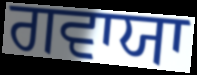
ਗਵਾਯਾ